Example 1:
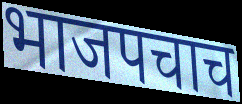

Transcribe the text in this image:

भाजपचाच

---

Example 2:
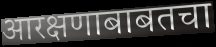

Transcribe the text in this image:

आरक्षणाबाबतचा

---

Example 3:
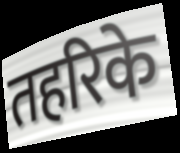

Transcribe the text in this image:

तहरिके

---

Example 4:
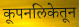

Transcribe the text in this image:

कूपनलिकेतून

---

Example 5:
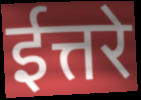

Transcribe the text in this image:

ईत्तरे